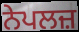
ਨੇਪਲਜ਼